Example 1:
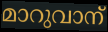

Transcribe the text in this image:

മാറുവാന്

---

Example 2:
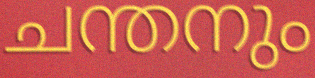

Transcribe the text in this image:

ചന്തനും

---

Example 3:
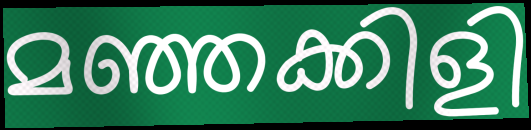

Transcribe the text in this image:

മഞ്ഞക്കിളി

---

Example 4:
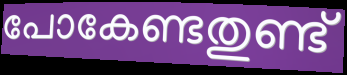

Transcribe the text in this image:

പോകേണ്ടതുണ്ട്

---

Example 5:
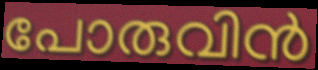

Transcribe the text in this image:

പോരുവിൻ